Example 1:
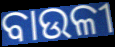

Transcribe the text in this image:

ବାଉଳୀ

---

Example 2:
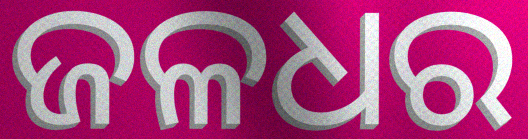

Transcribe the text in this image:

ଜଳଧର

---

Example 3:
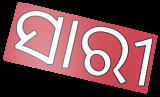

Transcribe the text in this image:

ସାରୀ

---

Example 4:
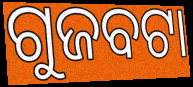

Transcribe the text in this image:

ଗୁଜବଟା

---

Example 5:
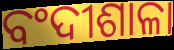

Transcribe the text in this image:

ବଂଦୀଶାଳା